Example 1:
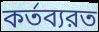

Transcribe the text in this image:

কর্তব্যরত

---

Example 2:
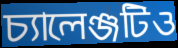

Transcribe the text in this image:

চ্যালেঞ্জটিও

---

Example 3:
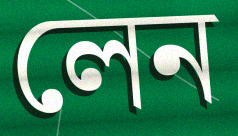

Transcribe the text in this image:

লেন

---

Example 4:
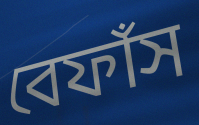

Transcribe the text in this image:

বেফাঁস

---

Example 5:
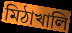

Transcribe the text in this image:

মিঠাখালি